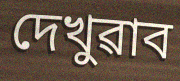
দেখুৱাব